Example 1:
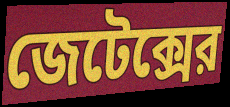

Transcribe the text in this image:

জেটেক্সের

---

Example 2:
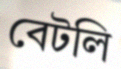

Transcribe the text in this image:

বেটলি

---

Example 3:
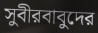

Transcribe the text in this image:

সুবীরবাবুদের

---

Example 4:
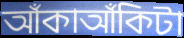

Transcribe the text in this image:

আঁকাআঁকিটা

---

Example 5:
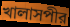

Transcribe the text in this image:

খালাসপীর